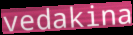
vedakina